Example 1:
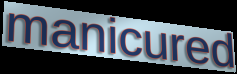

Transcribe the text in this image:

manicured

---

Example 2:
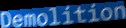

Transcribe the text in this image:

Demolition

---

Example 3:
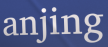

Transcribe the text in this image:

anjing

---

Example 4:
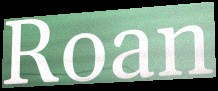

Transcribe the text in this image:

Roan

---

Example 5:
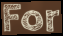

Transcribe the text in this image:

For